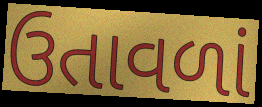
ઉતાવળાં